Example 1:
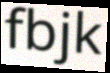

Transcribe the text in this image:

fbjk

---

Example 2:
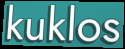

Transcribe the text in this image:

kuklos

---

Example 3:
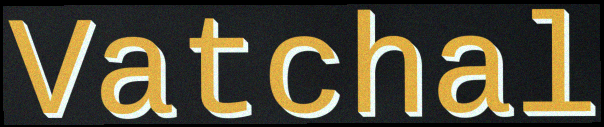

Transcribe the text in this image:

Vatchal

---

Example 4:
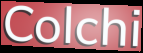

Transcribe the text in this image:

Colchi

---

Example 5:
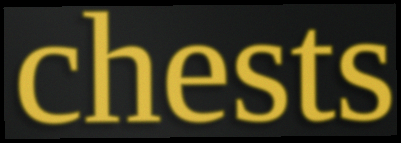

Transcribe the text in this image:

chests